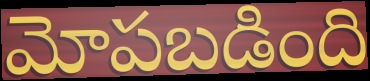
మోపబడింది